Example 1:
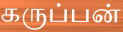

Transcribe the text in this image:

கருப்பன்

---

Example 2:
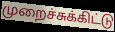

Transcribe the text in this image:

முறைச்சுக்கிட்டு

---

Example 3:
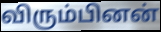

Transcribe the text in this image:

விரும்பினன்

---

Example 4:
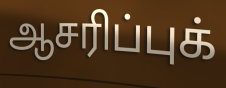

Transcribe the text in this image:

ஆசரிப்புக்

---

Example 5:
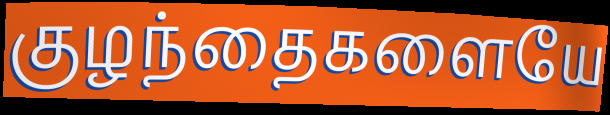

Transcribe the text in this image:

குழந்தைகளையே